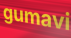
gumavi